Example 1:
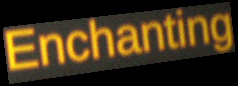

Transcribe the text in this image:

Enchanting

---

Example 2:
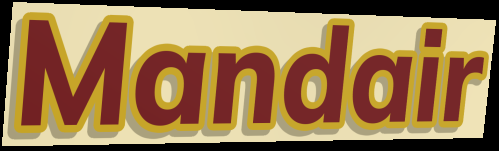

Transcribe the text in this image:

Mandair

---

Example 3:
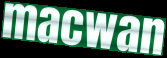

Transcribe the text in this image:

macwan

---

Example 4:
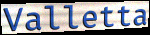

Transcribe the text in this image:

Valletta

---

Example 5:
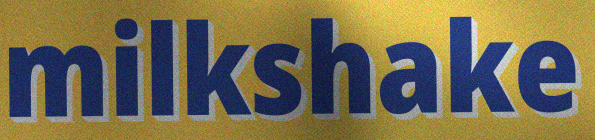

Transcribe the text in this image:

milkshake